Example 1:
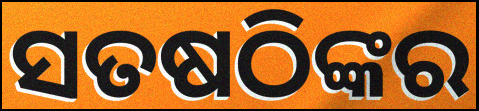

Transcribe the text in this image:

ସତଷଠିଙ୍କର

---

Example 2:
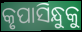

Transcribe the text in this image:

କୃପାସିନ୍ଧୁକୁ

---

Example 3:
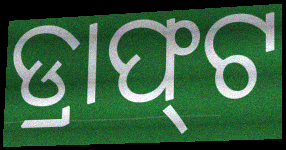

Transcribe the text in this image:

ଡ୍ରାଫ୍‍ଟ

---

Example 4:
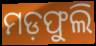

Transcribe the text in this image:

ମଡ଼ଫୁଲି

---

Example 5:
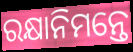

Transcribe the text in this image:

ରକ୍ଷାନିମନ୍ତେ